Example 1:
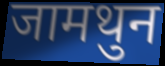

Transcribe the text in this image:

जामथुन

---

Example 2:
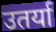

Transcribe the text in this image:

उतर्या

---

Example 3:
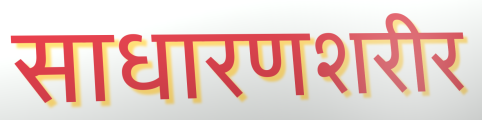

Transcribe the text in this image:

साधारणशरीर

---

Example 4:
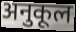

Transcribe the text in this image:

अनुकूल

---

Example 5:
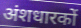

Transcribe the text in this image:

अंशधारकों